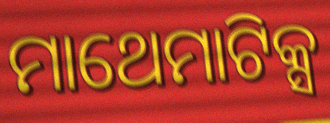
ମାଥେମାଟିକ୍ସ